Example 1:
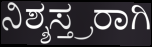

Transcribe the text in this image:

ನಿಶ್ಶಸ್ತ್ರರಾಗಿ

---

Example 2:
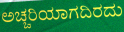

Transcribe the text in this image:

ಅಚ್ಚರಿಯಾಗದಿರದು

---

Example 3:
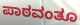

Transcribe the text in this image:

ಪಾಠವಂತೂ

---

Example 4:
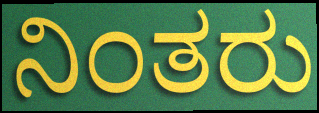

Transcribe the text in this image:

ನಿಂತರು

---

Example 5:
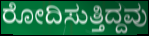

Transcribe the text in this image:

ರೋದಿಸುತ್ತಿದ್ದವು